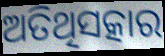
ଅତିଥିସତ୍କାର